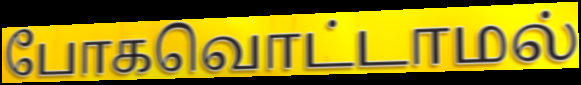
போகவொட்டாமல்